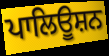
ਪਾਲਿਊਸ਼ਨ